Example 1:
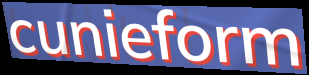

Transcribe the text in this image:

cunieform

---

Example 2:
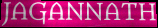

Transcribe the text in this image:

JAGANNATH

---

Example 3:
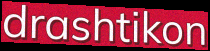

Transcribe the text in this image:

drashtikon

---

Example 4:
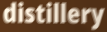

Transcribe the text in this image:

distillery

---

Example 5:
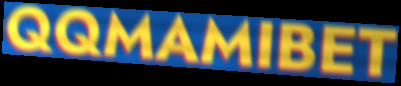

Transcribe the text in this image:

QQMAMIBET